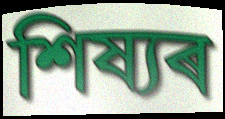
শিষ্যৰ